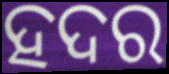
ହଦର